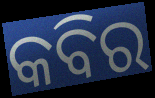
କବିର